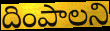
దింపాలని